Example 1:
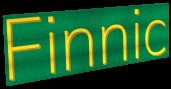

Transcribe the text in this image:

Finnic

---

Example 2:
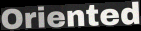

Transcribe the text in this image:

Oriented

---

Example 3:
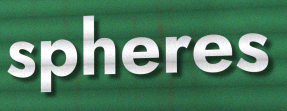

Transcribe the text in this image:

spheres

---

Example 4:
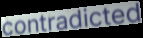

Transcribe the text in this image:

contradicted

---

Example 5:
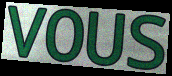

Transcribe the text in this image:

VOUS